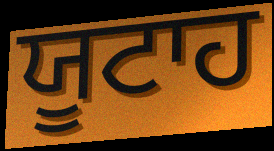
ਯੂਟਾਹ